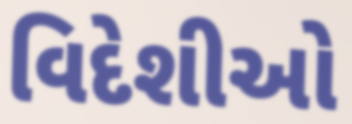
વિદેશીઓ